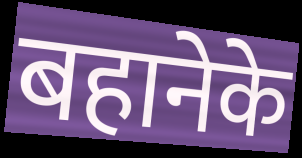
बहानेके